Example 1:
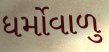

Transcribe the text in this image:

ધર્મોવાળુ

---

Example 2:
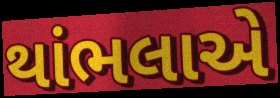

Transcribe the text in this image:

થાંભલાએ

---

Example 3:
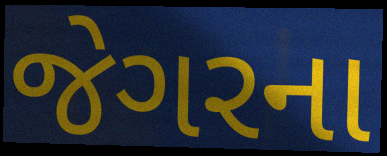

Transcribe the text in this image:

જેગરના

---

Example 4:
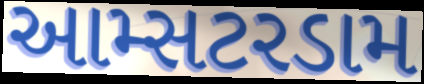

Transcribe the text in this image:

આમ્સટરડામ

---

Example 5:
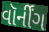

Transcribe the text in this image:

વૉર્નીંગ